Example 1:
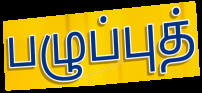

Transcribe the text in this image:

பழுப்புத்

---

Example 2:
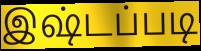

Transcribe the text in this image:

இஷ்டப்படி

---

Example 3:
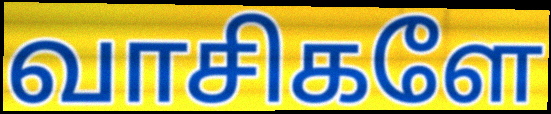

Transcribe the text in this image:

வாசிகளே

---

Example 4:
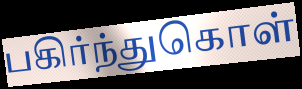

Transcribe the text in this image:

பகிர்ந்துகொள்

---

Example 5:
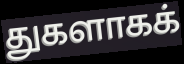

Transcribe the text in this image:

துகளாகக்